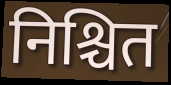
निश्चित